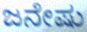
ಜನೇಷು